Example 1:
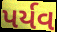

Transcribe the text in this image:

પર્યવ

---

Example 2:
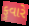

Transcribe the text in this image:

ફુવારે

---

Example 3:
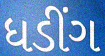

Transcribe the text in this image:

ધડીંગ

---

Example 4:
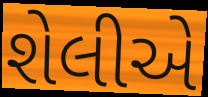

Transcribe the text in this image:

શેલીએ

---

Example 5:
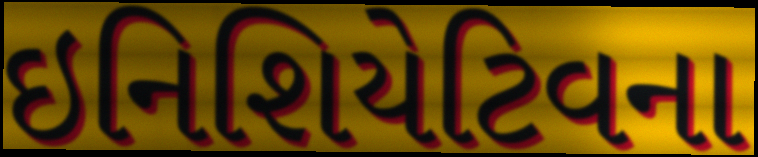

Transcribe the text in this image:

ઇનિશિયેટિવના